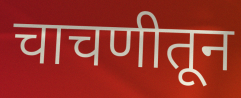
चाचणीतून